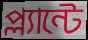
প্ল্যান্টে